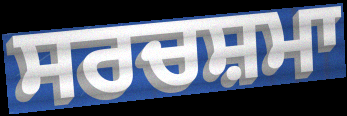
ਸਰਚਸ਼ਮਾ